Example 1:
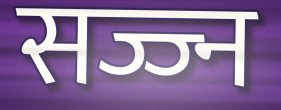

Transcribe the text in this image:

सज्ज्न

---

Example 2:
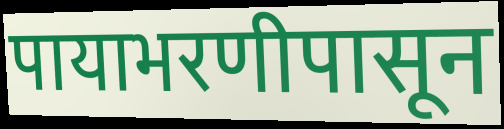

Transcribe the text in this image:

पायाभरणीपासून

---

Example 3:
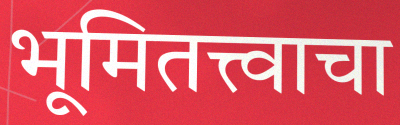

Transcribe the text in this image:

भूमितत्त्वाचा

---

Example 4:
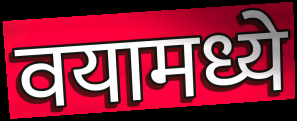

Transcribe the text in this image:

वयामध्ये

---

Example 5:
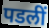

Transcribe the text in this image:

पडलीं